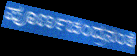
ಪೂರ್ಣಚಂದ್ರನಂತೆ